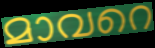
മാവറെ